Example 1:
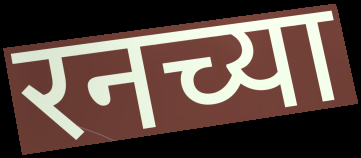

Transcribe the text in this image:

रनच्या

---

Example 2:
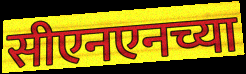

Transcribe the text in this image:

सीएनएनच्या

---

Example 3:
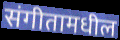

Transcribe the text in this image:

संगीतामधील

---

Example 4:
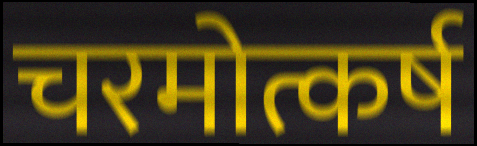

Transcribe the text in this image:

चरमोत्कर्ष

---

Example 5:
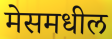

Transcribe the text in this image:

मेसमधील